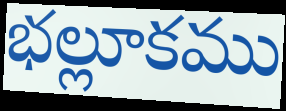
భల్లూకము